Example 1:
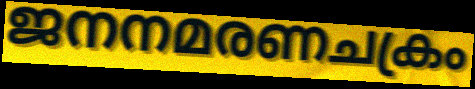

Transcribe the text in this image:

ജനനമരണചക്രം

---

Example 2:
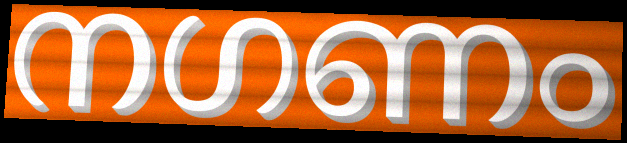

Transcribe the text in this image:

നഗണം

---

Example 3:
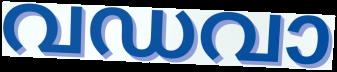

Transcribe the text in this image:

വഡവാ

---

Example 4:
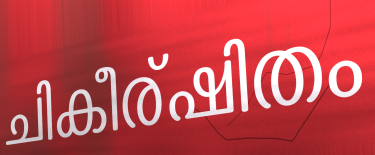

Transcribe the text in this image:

ചികീര്ഷിതം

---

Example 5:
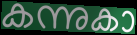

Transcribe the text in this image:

കന്നുകാ